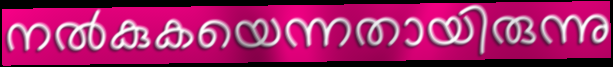
നൽകുകയെന്നതായിരുന്നു